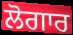
ਲੋਗਾਰ